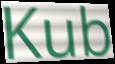
Kub